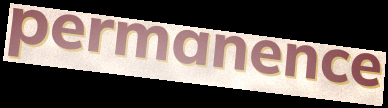
permanence